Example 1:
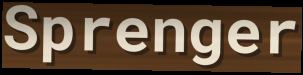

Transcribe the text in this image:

Sprenger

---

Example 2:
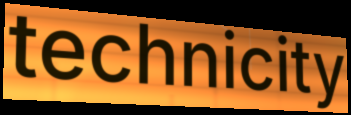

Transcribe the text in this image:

technicity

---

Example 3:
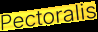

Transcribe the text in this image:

Pectoralis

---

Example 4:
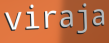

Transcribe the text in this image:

viraja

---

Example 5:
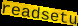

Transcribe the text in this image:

readsetu